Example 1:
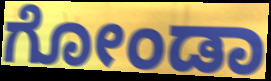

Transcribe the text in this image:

ಗೋಂಡಾ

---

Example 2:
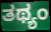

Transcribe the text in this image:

ತಥ್ಯಂ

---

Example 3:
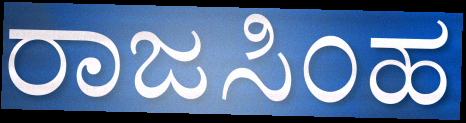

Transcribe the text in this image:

ರಾಜಸಿಂಹ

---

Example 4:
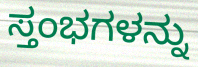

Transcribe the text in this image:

ಸ್ತಂಭಗಳನ್ನು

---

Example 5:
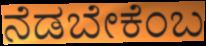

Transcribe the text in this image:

ನೆಡಬೇಕೆಂಬ